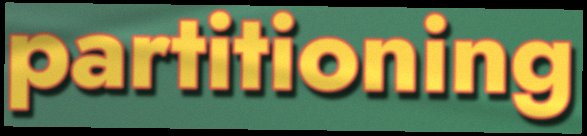
partitioning